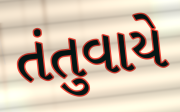
તંતુવાયે